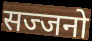
सज्जनो